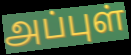
அப்புள்